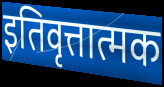
इतिवृत्तात्मक